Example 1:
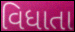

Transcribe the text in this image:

વિધાતા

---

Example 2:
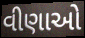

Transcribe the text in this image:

વીણાઓ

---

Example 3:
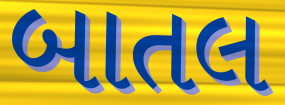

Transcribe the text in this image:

બાતલ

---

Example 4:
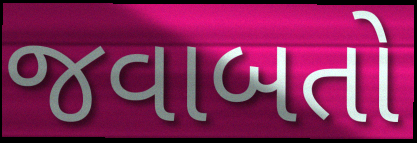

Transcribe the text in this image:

જવાબતો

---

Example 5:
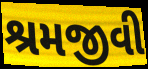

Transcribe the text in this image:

શ્રમજીવી